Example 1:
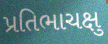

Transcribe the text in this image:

પ્રતિભાચક્ષુ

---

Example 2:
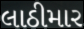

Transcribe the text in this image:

લાઠીમાર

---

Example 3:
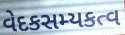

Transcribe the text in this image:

વેદકસમ્યકત્વ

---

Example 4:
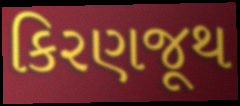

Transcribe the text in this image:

કિરણજૂથ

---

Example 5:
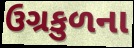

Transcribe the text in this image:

ઉગ્રકુળના